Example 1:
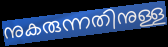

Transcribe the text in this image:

നുകരുന്നതിനുള്ള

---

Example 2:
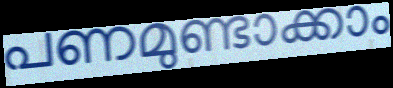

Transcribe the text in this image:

പണമുണ്ടാക്കാം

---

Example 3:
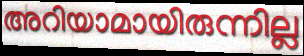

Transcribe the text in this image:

അറിയാമായിരുന്നില്ല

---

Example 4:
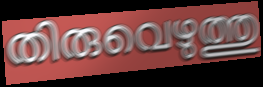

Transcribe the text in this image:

തിരുവെഴുത്തു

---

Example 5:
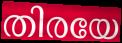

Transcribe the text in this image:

തിരയേ